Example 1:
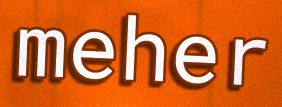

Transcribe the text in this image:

meher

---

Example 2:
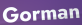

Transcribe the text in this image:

Gorman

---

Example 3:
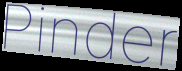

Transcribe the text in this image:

Pinder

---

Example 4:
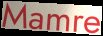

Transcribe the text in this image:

Mamre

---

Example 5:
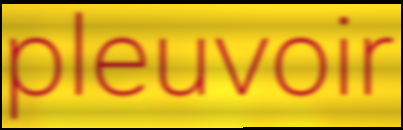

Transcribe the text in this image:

pleuvoir